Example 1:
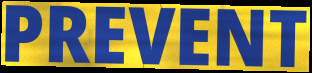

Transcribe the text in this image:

PREVENT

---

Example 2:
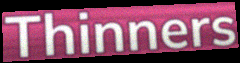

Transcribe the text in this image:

Thinners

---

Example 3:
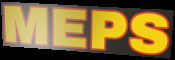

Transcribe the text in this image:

MEPS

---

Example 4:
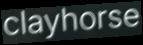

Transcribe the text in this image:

clayhorse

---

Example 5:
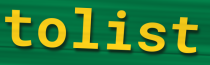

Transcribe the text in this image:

tolist